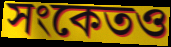
সংকেতও